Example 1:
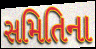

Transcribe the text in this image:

સમિતિના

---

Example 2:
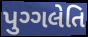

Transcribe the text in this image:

પુગ્ગલેતિ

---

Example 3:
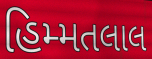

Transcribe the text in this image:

હિમ્મતલાલ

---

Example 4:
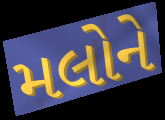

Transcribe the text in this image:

મલોને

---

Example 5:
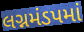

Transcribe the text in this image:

લગ્નમંડપમાં